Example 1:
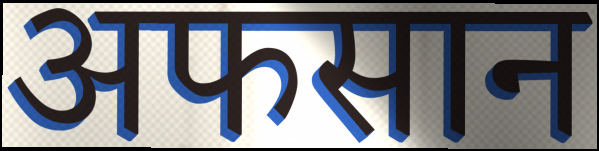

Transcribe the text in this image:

अफसान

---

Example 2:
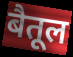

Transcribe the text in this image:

बैतूल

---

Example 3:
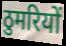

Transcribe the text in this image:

ठुमरियों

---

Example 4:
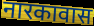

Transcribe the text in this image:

नारकावास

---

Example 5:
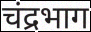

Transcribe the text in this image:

चंद्रभाग